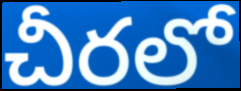
చీరలో